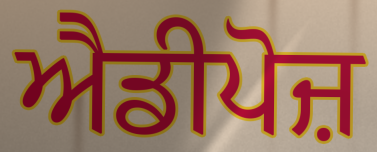
ਐਡੀਪੋਜ਼